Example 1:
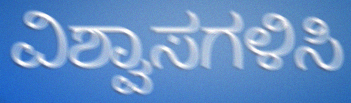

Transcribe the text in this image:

ವಿಶ್ವಾಸಗಳಿಸಿ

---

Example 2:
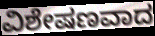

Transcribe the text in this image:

ವಿಶೇಷಣವಾದ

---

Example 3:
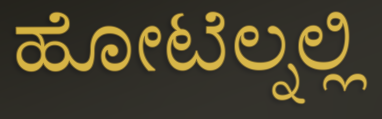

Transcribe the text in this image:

ಹೋಟೆಲ್ನಲ್ಲಿ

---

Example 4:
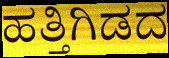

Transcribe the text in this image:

ಹತ್ತಿಗಿಡದ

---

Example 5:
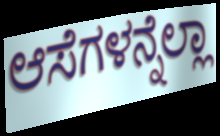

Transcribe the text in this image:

ಆಸೆಗಳನ್ನೆಲ್ಲಾ